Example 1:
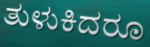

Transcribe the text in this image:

ತುಳುಕಿದರೂ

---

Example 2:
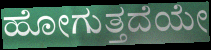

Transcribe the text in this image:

ಹೋಗುತ್ತದೆಯೇ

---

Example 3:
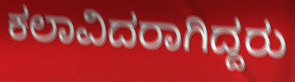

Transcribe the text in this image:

ಕಲಾವಿದರಾಗಿದ್ದರು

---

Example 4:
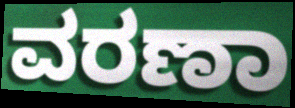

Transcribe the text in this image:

ವರಣಾ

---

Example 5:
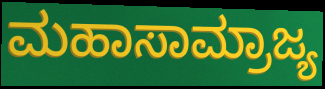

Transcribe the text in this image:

ಮಹಾಸಾಮ್ರಾಜ್ಯ